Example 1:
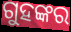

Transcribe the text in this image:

ଗୁହଙ୍କର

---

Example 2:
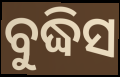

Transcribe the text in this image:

ବୁଦ୍ଧିସ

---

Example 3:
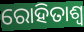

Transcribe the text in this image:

ରୋହିତାଶ୍ୱ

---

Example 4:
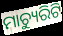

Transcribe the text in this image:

ମାଚ୍ୟୁରିଟି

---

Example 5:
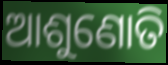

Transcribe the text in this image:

ଆଶୁଣୋତି